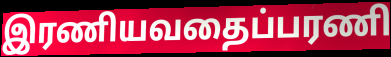
இரணியவதைப்பரணி